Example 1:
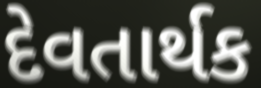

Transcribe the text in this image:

દેવતાર્થક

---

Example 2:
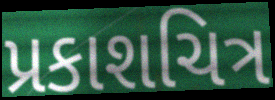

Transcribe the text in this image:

પ્રકાશચિત્ર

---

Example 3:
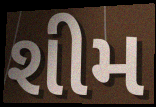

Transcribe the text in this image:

શીમ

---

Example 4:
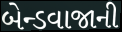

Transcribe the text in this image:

બેન્ડવાજાની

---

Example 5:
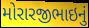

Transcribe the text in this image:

મોરારજીભાઇનું